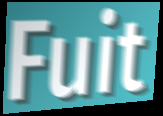
Fuit